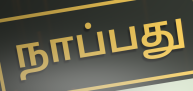
நாப்பது